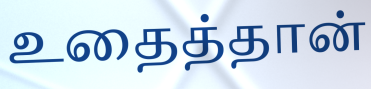
உதைத்தான்